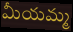
మీయమ్మ